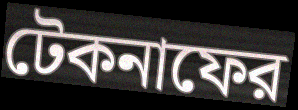
টেকনাফের